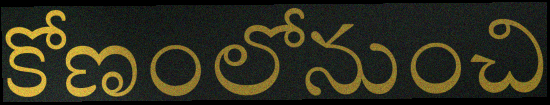
కోణంలోనుంచి